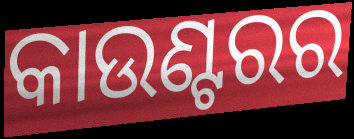
କାଉଣ୍ଟରର